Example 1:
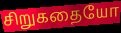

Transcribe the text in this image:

சிறுகதையோ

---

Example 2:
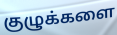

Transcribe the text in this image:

குழுக்களை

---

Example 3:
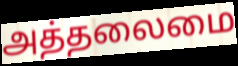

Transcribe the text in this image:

அத்தலைமை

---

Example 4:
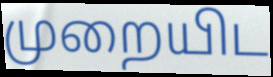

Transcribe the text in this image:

முறையிட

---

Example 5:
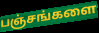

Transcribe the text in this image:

பஞ்சங்களை